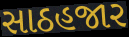
સાઠહજાર